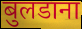
बुलडाना